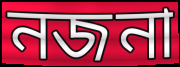
নজনা